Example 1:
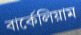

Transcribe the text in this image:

বার্কেলিয়াম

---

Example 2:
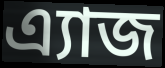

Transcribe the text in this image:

এ্যাজ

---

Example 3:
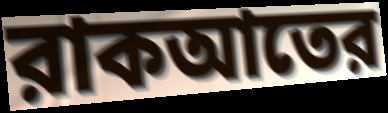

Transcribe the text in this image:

রাকআতের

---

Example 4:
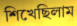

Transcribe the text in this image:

শিখেছিলাম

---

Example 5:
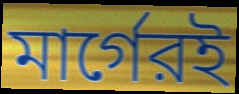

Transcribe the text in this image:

মার্গেরই